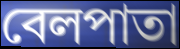
বেলপাতা